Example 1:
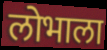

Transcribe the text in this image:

लोभाला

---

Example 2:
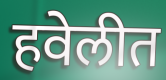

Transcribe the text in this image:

हवेलीत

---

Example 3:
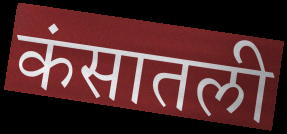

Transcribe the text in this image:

कंसातली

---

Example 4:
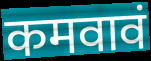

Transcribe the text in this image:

कमवावं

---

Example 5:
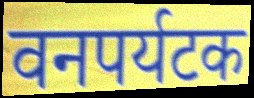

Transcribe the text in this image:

वनपर्यटक